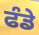
ਫੰਡੇ